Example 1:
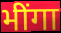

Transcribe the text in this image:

भींगा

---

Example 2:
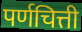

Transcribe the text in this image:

पर्णचित्ती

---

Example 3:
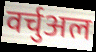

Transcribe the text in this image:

वर्चुअल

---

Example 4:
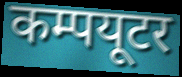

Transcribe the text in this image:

कम्पयूटर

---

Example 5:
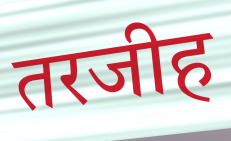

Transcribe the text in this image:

तरजीह